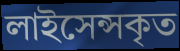
লাইসেন্সকৃত